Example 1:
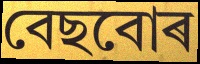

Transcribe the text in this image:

বেছবোৰ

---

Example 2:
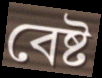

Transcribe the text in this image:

বেষ্ট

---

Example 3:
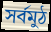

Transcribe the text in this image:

সৰ্বমুঠ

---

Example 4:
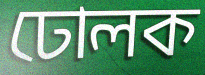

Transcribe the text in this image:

ঢোলক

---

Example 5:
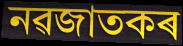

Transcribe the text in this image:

নৱজাতকৰ